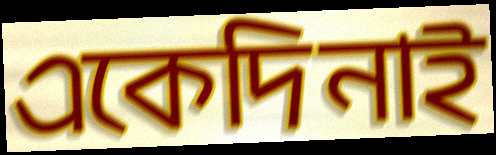
একেদিনাই